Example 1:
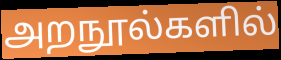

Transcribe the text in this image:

அறநூல்களில்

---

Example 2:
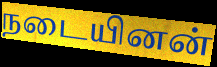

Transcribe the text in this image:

நடையினன்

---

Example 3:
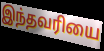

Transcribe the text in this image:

இந்தவரியை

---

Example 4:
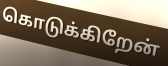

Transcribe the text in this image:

கொடுக்கிறேன்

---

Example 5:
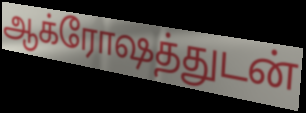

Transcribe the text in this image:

ஆக்ரோஷத்துடன்